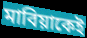
মাবিয়াকেই